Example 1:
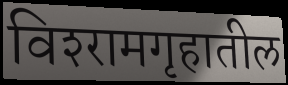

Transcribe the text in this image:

विश्रामगृहातील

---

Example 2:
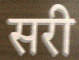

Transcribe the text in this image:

सरी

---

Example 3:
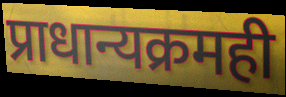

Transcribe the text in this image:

प्राधान्यक्रमही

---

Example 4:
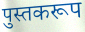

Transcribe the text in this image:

पुस्तकरूप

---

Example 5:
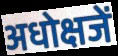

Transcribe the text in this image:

अधोक्षजें